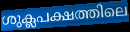
ശുക്ലപക്ഷത്തിലെ